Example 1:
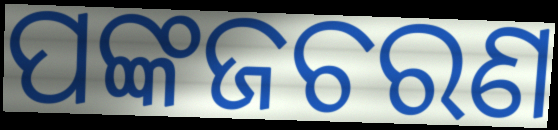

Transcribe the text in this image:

ପଙ୍କଜଚରଣ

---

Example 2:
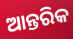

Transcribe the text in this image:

ଆନ୍ତରିକ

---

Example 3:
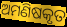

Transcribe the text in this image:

ଅମଣିଷକୃତ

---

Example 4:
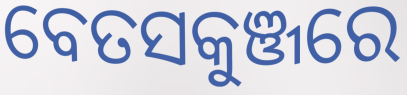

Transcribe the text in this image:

ବେତସକୁଞ୍ଜରେ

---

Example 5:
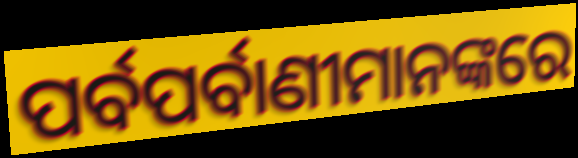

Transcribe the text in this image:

ପର୍ବପର୍ବାଣୀମାନଙ୍କରେ